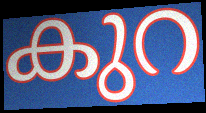
കുറ